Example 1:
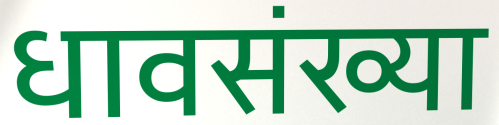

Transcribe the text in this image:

धावसंख्या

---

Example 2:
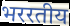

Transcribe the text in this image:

भररतीय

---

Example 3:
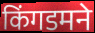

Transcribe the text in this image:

किंगडमने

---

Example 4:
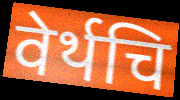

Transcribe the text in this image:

वेर्थचि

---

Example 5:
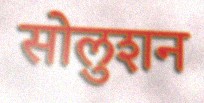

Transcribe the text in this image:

सोलुशन